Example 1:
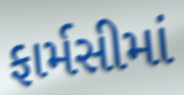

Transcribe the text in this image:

ફાર્મસીમાં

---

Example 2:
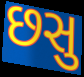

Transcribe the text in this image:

છસુ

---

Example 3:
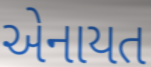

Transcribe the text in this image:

એનાયત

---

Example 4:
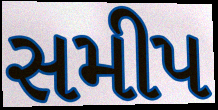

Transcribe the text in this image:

સમીપ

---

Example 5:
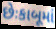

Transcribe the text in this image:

છેઃકાબૂમાં